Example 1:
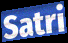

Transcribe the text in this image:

Satri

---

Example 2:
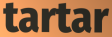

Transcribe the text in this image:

tartar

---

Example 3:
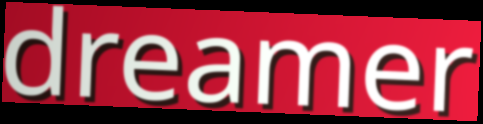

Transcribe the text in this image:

dreamer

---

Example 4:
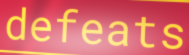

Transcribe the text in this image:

defeats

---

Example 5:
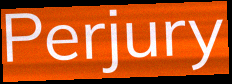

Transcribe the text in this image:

Perjury